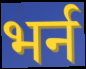
भर्न